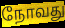
நோவது